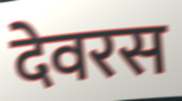
देवरस